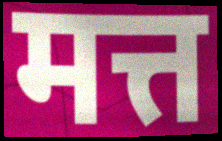
मत्त